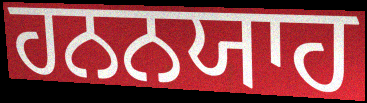
ਹਨਨਯਾਹ